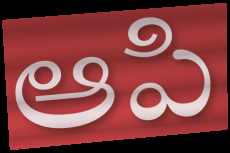
ఆపి